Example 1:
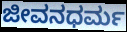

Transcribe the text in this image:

ಜೀವನಧರ್ಮ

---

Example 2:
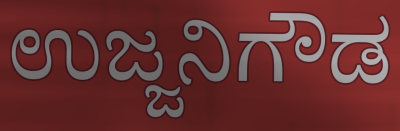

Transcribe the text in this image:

ಉಜ್ಜನಿಗೌಡ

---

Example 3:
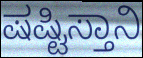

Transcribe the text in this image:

ಷಷ್ಟಿಸ್ತಾನಿ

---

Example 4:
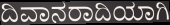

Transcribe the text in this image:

ದಿವಾನರಾದಿಯಾಗಿ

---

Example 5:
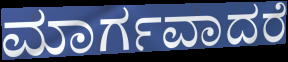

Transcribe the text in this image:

ಮಾರ್ಗವಾದರೆ